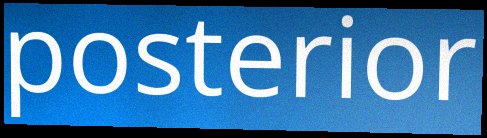
posterior